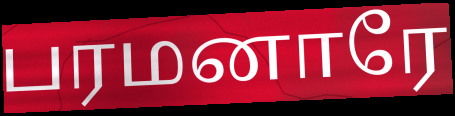
பரமனாரே